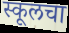
स्कूलचा